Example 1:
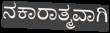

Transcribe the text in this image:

ನಕಾರಾತ್ಮವಾಗಿ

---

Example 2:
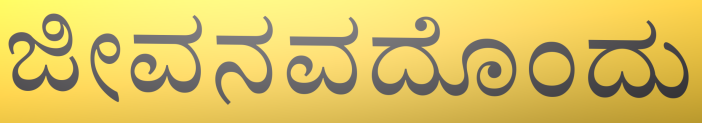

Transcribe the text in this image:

ಜೀವನವದೊಂದು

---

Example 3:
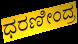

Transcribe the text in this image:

ಧರಣೀಂದ್ರ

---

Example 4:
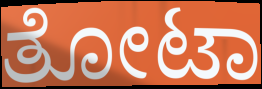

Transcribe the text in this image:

ತೋಟಾ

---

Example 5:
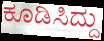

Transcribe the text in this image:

ಕೂಡಿಸಿದ್ದು